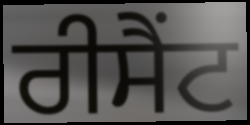
ਰੀਸੈਂਟ